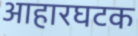
आहारघटक